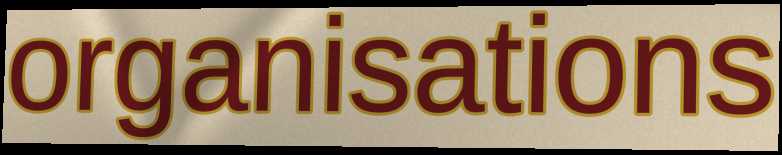
organisations